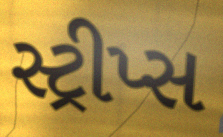
સ્ટ્રીપ્સ